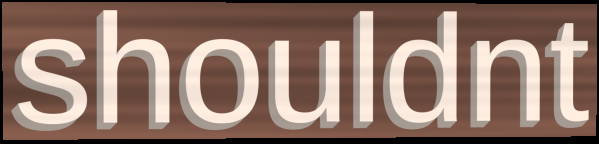
shouldnt